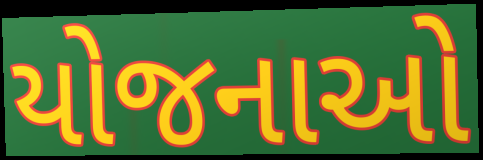
યોજનાઓ